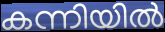
കന്നിയിൽ